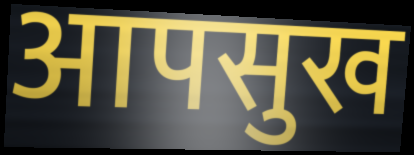
आपसुख